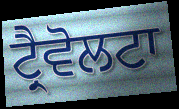
ਟ੍ਰੈਵੋਲਟਾ